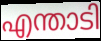
എന്താടി